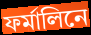
ফর্মালিনে